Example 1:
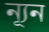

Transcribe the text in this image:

ন্যূন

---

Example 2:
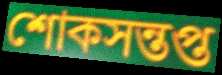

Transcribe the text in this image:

শোকসন্তপ্ত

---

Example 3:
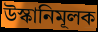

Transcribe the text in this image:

উস্কানিমূলক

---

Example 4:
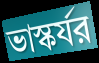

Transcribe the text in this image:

ভাস্কর্যর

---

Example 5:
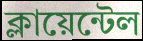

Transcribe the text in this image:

ক্লায়েন্টেল